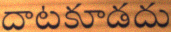
దాటకూడదు